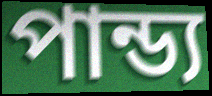
পান্ড্য